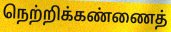
நெற்றிக்கண்ணைத்